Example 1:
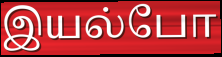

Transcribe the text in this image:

இயல்போ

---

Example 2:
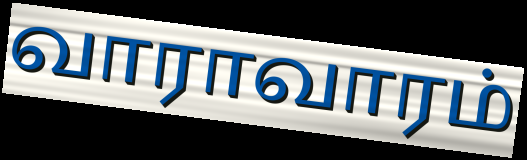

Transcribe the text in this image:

வாராவாரம்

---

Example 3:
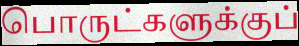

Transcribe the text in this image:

பொருட்களுக்குப்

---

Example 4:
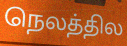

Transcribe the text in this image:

நெலத்தில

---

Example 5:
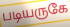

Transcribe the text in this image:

படியருகே